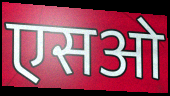
एसओ